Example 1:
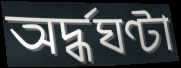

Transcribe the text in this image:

অর্দ্ধঘণ্টা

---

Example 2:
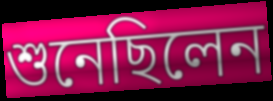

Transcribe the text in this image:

শুনেছিলেন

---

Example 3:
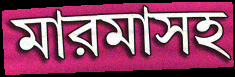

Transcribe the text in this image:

মারমাসহ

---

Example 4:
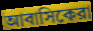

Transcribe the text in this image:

আবাসিকেরা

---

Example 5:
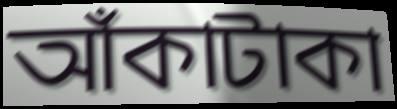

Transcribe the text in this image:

আঁকাটাকা